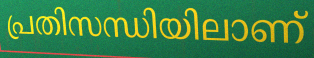
പ്രതിസന്ധിയിലാണ്